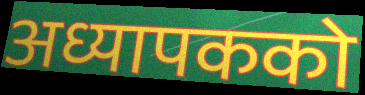
अध्यापकको